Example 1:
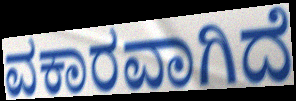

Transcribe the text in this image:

ವಕಾರವಾಗಿದೆ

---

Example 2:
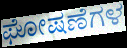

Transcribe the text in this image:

ಘೋಷಣೆಗಳ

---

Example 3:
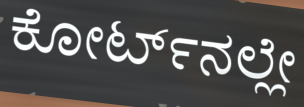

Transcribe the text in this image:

ಕೋರ್ಟ್‌ನಲ್ಲೇ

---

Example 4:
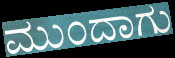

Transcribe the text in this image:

ಮುಂದಾಗು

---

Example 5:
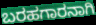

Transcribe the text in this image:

ಬರಹಗಾರನಾಗಿ